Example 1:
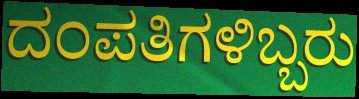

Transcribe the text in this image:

ದಂಪತಿಗಳಿಬ್ಬರು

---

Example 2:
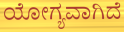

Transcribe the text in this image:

ಯೋಗ್ಯವಾಗಿದೆ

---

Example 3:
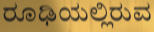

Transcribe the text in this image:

ರೂಢಿಯಲ್ಲಿರುವ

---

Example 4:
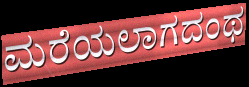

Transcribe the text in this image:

ಮರೆಯಲಾಗದಂಥ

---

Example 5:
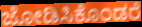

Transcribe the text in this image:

ಜೋಡಿಸಿಕೊಂಡರೆ